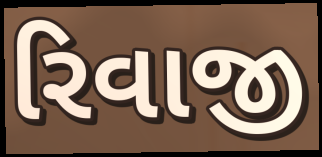
રિવાજી